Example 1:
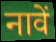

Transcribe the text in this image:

नावें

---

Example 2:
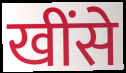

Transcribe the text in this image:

खींसे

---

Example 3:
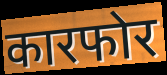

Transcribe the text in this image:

कारफोर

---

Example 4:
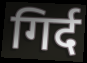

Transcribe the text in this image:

गिर्द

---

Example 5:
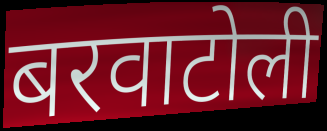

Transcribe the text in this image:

बरवाटोली